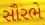
સૌરભે